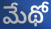
మేథో